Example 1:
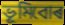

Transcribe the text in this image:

ভূমিবোৰ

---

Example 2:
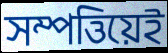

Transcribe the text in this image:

সম্পত্তিয়েই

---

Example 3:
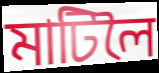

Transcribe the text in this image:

মাটিলৈ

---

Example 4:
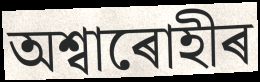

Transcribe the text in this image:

অশ্বাৰোহীৰ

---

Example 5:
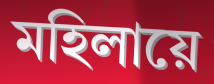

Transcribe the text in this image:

মহিলায়ে